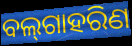
ବଲ୍‌ଗାହରିଣ